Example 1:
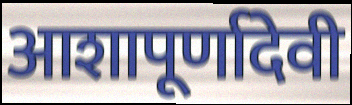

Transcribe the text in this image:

आशापूर्णादेवी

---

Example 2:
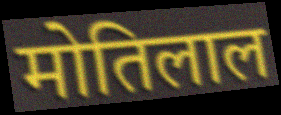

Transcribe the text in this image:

मोतिलाल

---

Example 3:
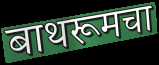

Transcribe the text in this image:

बाथरूमचा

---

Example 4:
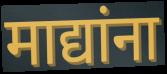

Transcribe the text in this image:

माद्यांना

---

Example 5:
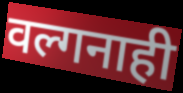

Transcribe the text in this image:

वल्गनाही